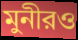
মুনীরও